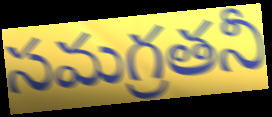
సమగ్రతనీ